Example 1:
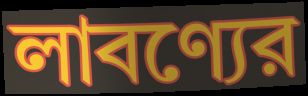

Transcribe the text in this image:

লাবণ্যের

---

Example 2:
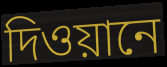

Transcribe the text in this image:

দিওয়ানে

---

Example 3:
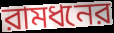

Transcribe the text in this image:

রামধনের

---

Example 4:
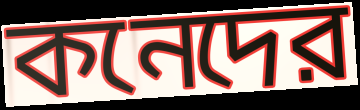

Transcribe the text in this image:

কনেদের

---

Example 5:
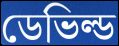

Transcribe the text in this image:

ডেভিল্ড